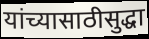
यांच्यासाठीसुद्धा